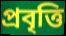
প্ৰবৃত্তি